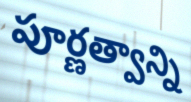
పూర్ణత్వాన్ని